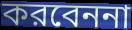
করবেননা